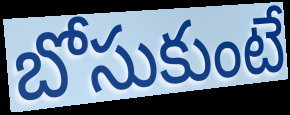
బోసుకుంటే